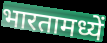
भारतामध्यें